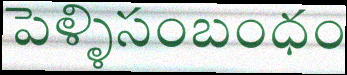
పెళ్ళిసంబంధం